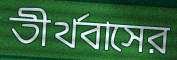
তীর্থবাসের